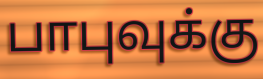
பாபுவுக்கு